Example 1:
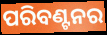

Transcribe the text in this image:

ପରିବଣ୍ଟନର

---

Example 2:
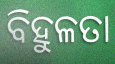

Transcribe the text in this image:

ବିହୁଳତା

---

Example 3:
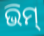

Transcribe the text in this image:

ଭିମ୍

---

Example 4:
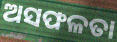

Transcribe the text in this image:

ଅସଫଳତା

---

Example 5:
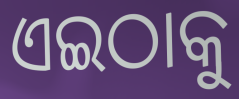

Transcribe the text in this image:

ଏଇଠାକୁ